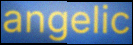
angelic